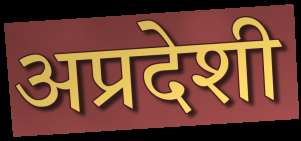
अप्रदेशी